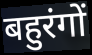
बहुरंगों